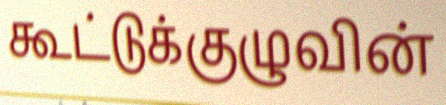
கூட்டுக்குழுவின்